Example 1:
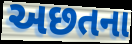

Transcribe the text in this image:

અછતના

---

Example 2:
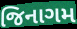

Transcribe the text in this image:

જિનાગમ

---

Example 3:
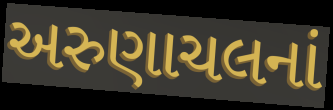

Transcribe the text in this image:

અરુણાચલનાં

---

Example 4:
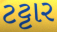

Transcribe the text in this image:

ટટ્ટાર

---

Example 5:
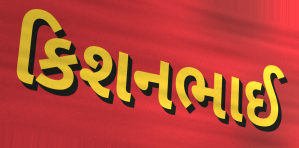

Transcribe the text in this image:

કિશનભાઈ